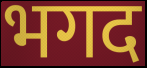
भगद